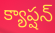
క్యాప్షన్